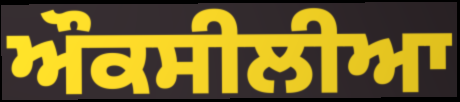
ਔਕਸੀਲੀਆ